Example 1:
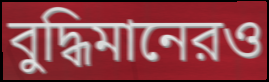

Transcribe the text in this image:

বুদ্ধিমানেরও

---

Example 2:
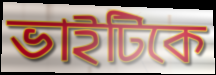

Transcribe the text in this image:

ভাইটিকে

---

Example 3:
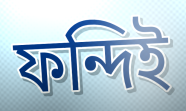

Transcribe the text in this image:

ফন্দিই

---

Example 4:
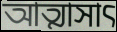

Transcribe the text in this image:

আত্মাসাৎ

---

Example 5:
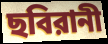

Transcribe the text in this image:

ছবিরানী